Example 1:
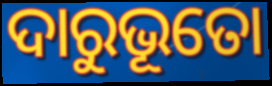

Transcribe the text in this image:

ଦାରୁଭୂତୋ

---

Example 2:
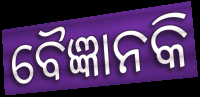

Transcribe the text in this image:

ବୈଜ୍ଞାନକି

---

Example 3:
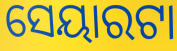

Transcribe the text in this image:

ସେୟାରଟା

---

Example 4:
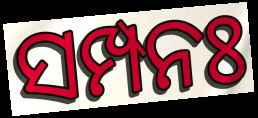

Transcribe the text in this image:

ସମ୍ପନଃ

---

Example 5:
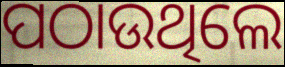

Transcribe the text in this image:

ପଠାଉଥିଲେ